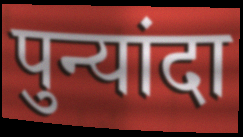
पुन्यांदा